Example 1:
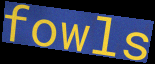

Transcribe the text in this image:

fowls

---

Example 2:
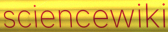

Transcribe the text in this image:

sciencewiki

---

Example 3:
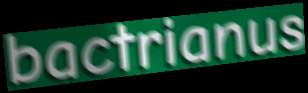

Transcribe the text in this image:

bactrianus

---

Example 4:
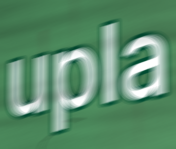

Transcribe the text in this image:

upla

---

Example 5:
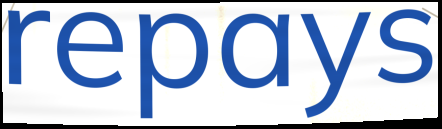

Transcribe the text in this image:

repays